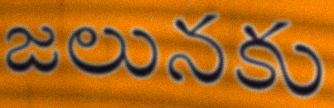
జలునకు